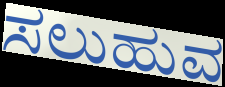
ಸಲುಹುವ